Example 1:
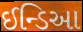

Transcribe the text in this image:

ઈન્ડિઆ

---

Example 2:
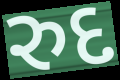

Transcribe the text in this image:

રુદ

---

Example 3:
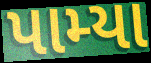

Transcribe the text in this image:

પામ્યા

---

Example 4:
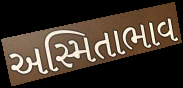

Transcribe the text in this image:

અસ્મિતાભાવ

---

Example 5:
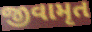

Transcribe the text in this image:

જીવામૃત